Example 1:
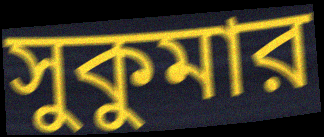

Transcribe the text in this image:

সুকুমার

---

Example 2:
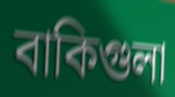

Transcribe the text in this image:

বাকিগুলা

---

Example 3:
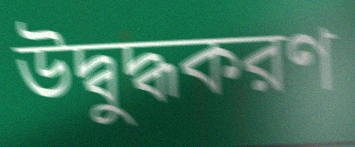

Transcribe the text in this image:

উদ্বুদ্ধকরণ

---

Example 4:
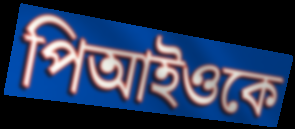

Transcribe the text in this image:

পিআইওকে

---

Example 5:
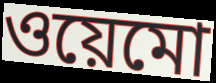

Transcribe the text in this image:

ওয়েমো